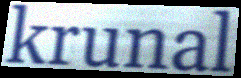
krunal